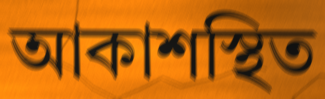
আকাশস্থিত